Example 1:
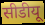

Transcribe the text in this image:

सीडीयू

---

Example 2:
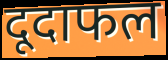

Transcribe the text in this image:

दूदाफल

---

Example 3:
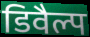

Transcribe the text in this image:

डिवैल्प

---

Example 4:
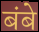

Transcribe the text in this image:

बंबे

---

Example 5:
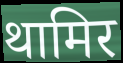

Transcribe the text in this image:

थामिर